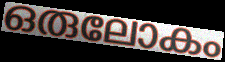
ഒരുലോകം